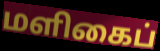
மளிகைப்